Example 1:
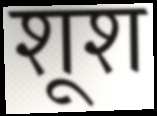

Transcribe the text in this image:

शूश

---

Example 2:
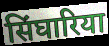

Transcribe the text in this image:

सिंघारिया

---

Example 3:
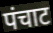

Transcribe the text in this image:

पंचाट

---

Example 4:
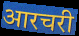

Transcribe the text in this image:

आरचरी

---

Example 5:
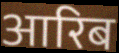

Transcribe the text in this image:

आरिब